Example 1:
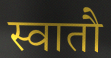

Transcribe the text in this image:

स्वातौ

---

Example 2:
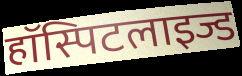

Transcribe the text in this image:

हॉस्पिटलाइज्ड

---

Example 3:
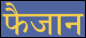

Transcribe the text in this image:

फैजान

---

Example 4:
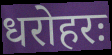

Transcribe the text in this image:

धरोहरः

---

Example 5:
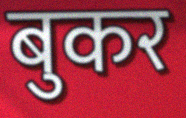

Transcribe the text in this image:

बुकर